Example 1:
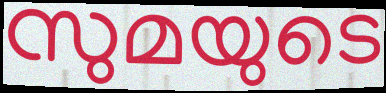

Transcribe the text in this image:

സുമയുടെ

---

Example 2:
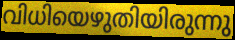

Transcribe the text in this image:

വിധിയെഴുതിയിരുന്നു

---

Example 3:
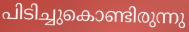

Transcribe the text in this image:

പിടിച്ചുകൊണ്ടിരുന്നു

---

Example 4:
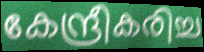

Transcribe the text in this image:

കേന്ദ്രീകരിച്ച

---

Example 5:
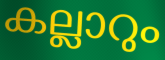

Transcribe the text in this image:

കല്ലാറും